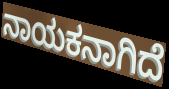
ನಾಯಕನಾಗಿದೆ